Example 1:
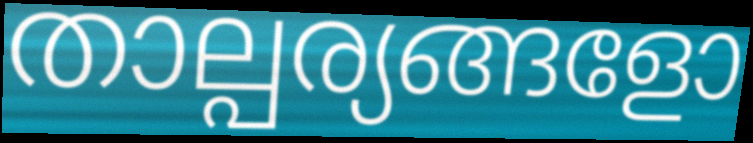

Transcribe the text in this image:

താല്പര്യങ്ങളോ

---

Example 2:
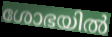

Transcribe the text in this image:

ശോഭയിൽ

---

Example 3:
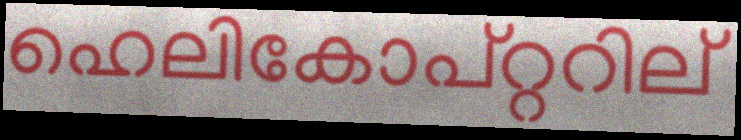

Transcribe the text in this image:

ഹെലികോപ്റ്ററില്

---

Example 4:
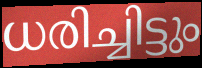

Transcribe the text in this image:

ധരിച്ചിട്ടും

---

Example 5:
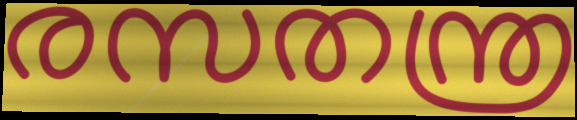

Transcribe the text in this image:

രസതന്ത്ര